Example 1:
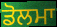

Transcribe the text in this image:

ਡੋਲਮਾ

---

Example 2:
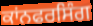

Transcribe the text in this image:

ਕਾਂਨਫਰਸਿੰਗ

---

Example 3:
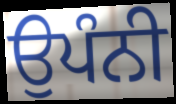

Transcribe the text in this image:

ਉਪੰਨੀ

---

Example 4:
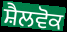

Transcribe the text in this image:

ਸ਼ੈਲਵੋਕ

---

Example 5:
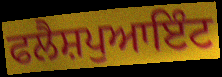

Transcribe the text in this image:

ਫਲੈਸ਼ਪੁਆਇੰਟ